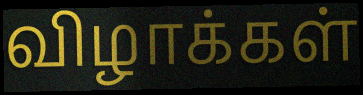
விழாக்கள்